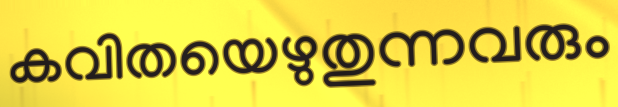
കവിതയെഴുതുന്നവരും